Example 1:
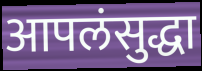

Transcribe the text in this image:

आपलंसुद्धा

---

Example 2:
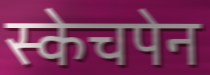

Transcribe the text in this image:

स्केचपेन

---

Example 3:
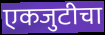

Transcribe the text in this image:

एकजुटीचा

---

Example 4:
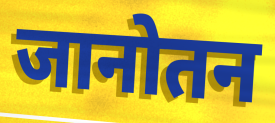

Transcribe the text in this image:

जानोतन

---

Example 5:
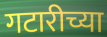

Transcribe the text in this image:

गटारीच्या